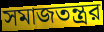
সমাজতন্ত্রর